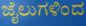
ಜೈಲುಗಳಿಂದ